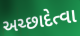
અચ્છાદેત્વા